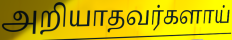
அறியாதவர்களாய்